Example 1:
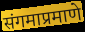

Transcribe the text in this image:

संगमाप्रमाणे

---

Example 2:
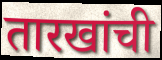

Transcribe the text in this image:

तारखांची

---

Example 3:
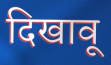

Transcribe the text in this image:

दिखावू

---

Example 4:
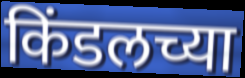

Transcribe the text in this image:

किंडलच्या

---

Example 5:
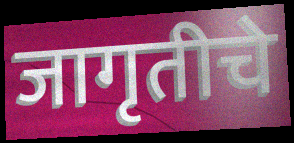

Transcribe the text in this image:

जागृतीचे